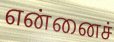
என்னைச்